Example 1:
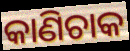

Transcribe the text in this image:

କାଣିଚାକ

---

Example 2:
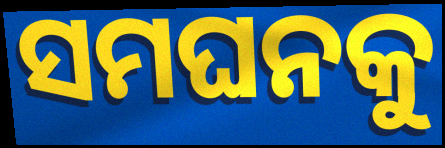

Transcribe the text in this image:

ସମଘନକୁ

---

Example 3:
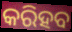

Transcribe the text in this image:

କରିହବ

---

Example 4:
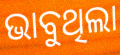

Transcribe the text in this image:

ଭାବୁଥିଲା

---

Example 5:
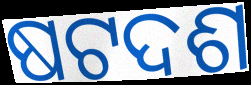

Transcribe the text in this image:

ଷଟଦଶ